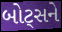
બોટ્સને